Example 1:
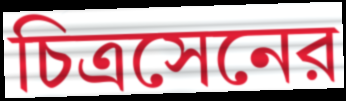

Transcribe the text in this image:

চিত্রসেনের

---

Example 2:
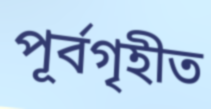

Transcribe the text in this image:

পূর্বগৃহীত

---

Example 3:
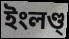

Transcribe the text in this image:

ইংলণ্ড্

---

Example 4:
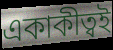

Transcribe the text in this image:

একাকীত্বই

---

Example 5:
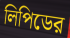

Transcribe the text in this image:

লিপিডের